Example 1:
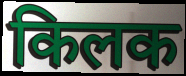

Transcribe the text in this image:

किलक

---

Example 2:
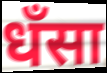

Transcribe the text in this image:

धँसा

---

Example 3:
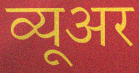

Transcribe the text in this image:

व्यूअर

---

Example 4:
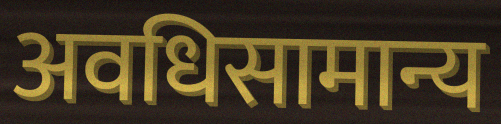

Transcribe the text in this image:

अवधिसामान्य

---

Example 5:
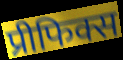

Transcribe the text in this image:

प्रीफिक्स